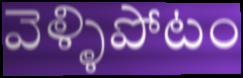
వెళ్ళిపోటం